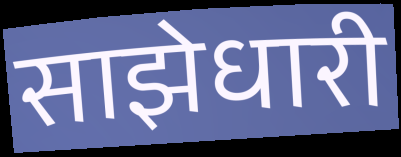
साझेधारी